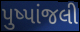
પુષ્પાંજલી